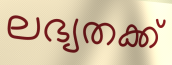
ലഭ്യതക്ക്